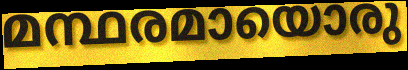
മന്ഥരമായൊരു